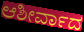
ಆಶೀರ್ವಾದ